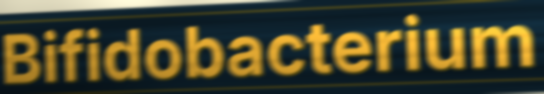
Bifidobacterium